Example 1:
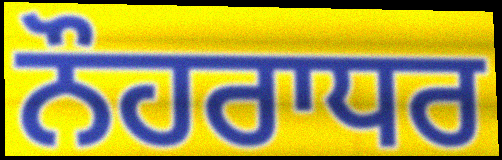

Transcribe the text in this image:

ਨੌਹਰਾਧਰ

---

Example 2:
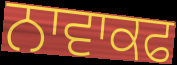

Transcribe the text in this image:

ਨਾਵਾਕਫ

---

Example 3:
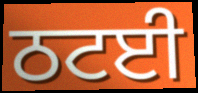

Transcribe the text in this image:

ਠਟਈ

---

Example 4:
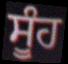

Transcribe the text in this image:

ਸੂੰਹ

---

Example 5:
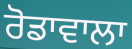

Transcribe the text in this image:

ਰੋਡਾਵਾਲਾ